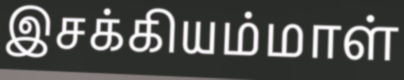
இசக்கியம்மாள்